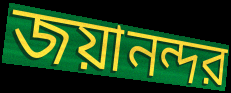
জয়ানন্দর